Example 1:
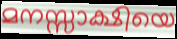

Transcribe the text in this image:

മനസ്സാക്ഷിയെ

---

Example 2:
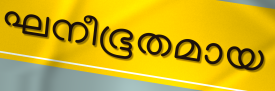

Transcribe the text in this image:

ഘനീഭൂതമായ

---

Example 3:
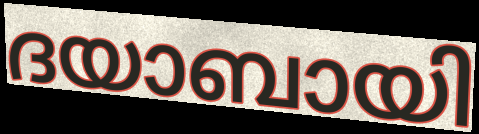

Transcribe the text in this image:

ദയാബായി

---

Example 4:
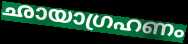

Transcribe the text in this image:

ഛായാഗ്രഹണം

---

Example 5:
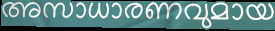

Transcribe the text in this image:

അസാധാരണവുമായ